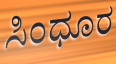
ಸಿಂಧೂರ